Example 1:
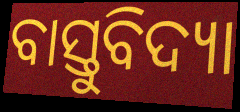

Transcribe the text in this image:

ବାସ୍ତୁବିଦ୍ୟା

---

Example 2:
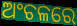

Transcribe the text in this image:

ଅଂଚଳରେ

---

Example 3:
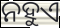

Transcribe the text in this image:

ନହୁଏ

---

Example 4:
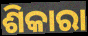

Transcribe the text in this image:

ଶିକାରା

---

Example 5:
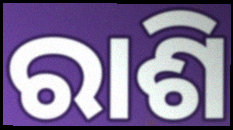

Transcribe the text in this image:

ରାଶି